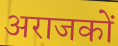
अराजकों